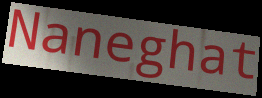
Naneghat